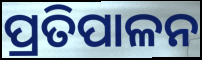
ପ୍ରତିପାଳନ